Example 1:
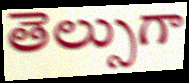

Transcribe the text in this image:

తెల్సుగా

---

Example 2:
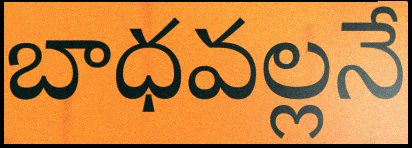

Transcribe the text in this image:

బాధవల్లనే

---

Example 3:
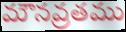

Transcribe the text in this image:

మౌనవ్రతము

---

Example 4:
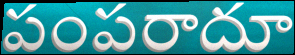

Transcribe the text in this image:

పంపరాదూ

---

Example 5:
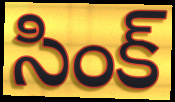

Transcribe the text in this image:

సింక్